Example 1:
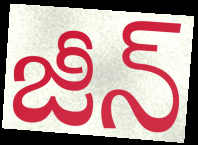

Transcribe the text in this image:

జీన్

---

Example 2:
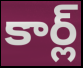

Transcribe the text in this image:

కార్ల్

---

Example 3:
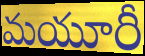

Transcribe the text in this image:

మయూరీ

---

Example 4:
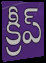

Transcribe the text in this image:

క్రీప్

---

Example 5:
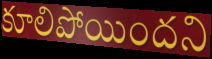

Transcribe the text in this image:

కూలిపోయిందని